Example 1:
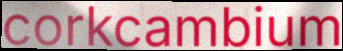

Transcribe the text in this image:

corkcambium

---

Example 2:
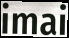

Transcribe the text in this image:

imai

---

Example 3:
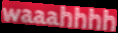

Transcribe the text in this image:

waaahhhh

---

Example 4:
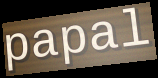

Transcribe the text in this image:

papal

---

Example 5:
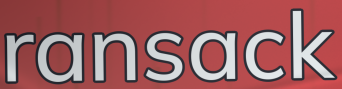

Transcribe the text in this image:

ransack